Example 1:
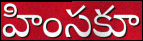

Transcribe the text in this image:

హింసకూ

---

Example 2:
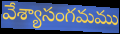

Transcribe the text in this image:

వేశ్యాసంగమము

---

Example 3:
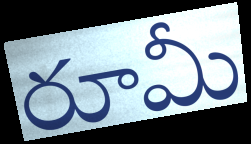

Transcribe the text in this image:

రూమీ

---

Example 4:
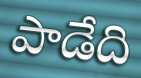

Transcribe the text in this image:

పాడేది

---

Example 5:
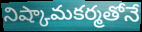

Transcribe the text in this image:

నిష్కామకర్మతోనే